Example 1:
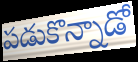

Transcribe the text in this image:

పడుకొన్నాడో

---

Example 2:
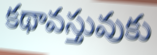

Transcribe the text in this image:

కథావస్తువుకు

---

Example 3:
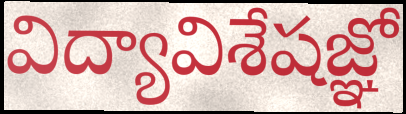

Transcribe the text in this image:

విద్యావిశేషజ్ఞో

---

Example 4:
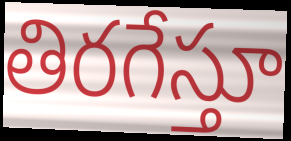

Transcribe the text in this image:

తిరగేస్తూ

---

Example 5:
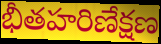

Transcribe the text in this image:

భీతహరిణేక్షణ